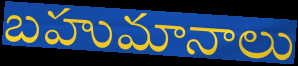
బహుమానాలు